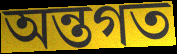
অন্তগত